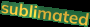
sublimated